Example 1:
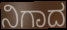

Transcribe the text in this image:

ನಿಗಾದ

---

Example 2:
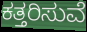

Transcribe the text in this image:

ಕತ್ತರಿಸುವೆ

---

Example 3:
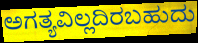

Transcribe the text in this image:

ಅಗತ್ಯವಿಲ್ಲದಿರಬಹುದು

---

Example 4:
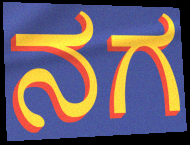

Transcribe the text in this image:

ನಗ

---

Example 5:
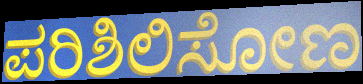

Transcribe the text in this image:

ಪರಿಶಿಲಿಸೋಣ